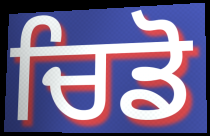
ਚਿਡੋ